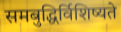
समबुद्धिर्विशिष्यते